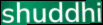
shuddhi